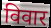
विवार